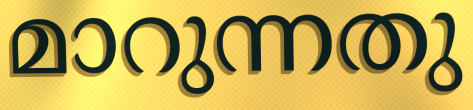
മാറുന്നതു